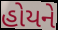
હોયને